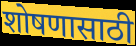
शोषणासाठी